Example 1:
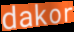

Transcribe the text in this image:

dakor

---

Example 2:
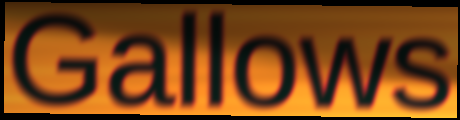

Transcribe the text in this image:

Gallows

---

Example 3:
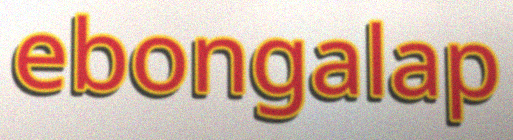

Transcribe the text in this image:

ebongalap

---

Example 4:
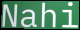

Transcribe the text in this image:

Nahi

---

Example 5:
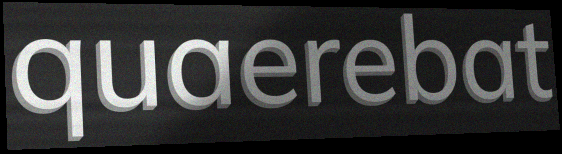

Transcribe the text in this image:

quaerebat